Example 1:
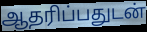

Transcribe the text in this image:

ஆதரிப்பதுடன்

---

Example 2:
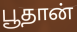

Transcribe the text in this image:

பூதான்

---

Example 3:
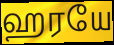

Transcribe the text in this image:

ஹரயே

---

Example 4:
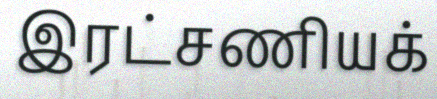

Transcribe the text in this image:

இரட்சணியக்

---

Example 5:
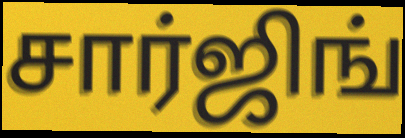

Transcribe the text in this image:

சார்ஜிங்